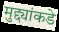
मुद्द्यांकडे